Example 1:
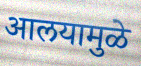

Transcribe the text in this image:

आलयामुळे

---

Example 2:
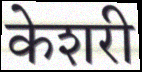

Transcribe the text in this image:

केशरी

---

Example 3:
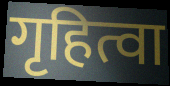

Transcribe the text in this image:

गृहित्वा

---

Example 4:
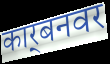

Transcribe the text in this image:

कार्बनवर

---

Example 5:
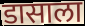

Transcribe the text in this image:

डासाला